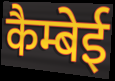
कैम्बेई